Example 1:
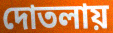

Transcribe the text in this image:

দোতলায়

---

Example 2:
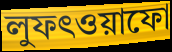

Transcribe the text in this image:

লুফৎওয়াফো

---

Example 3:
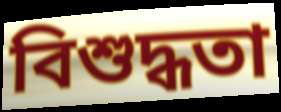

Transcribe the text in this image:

বিশুদ্ধতা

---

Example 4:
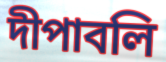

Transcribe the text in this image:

দীপাবলি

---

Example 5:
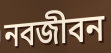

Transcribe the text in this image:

নবজীবন